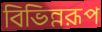
বিভিন্নরূপ